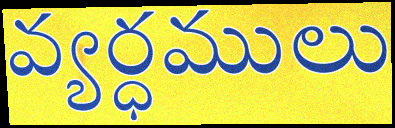
వ్యర్ధములు